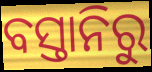
ବସ୍ତାନିରୁ